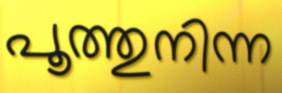
പൂത്തുനിന്ന